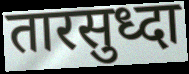
तारसुध्दा